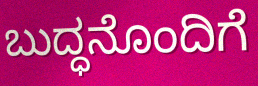
ಬುದ್ಧನೊಂದಿಗೆ